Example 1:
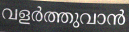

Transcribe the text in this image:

വളർത്തുവാൻ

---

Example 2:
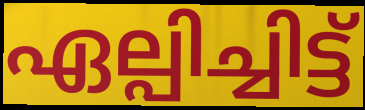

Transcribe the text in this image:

ഏല്പിച്ചിട്ട്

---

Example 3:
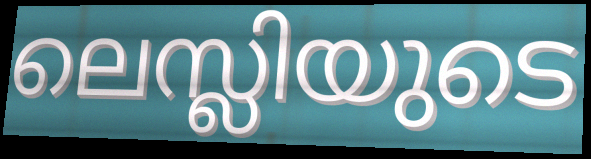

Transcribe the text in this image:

ലെസ്ലിയുടെ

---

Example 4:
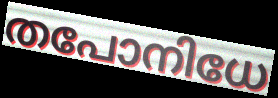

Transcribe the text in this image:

തപോനിധേ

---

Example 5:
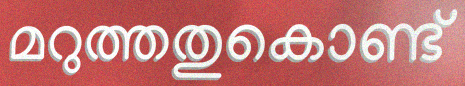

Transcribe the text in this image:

മറുത്തതുകൊണ്ട്